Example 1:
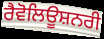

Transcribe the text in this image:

ਰੈਵੋਲਿਊਸ਼ਨਰੀ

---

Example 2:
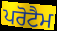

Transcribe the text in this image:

ਪਰੋਟੈਮ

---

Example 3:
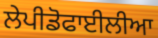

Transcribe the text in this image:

ਲੇਪੀਡੋਫਾਈਲੀਆ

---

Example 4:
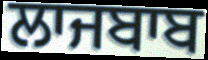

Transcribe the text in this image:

ਲਾਜਬਾਬ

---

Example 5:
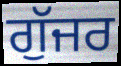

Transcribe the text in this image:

ਗੁੱਜਰ